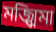
মজ্ঝিমা